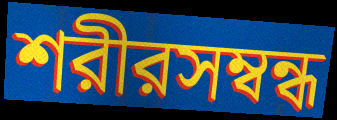
শরীরসম্বন্ধ